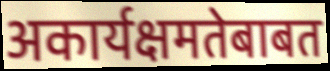
अकार्यक्षमतेबाबत